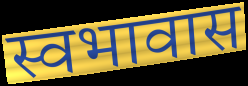
स्वभावास